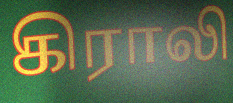
கிராலி